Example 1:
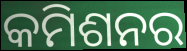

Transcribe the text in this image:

କମିଶନର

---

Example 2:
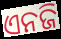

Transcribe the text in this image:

ଏନଜି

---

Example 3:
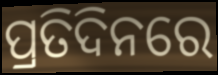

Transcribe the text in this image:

ପ୍ରତିଦିନରେ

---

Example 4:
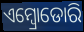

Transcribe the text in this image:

ଏମ୍ବ୍ରୋଡୋରି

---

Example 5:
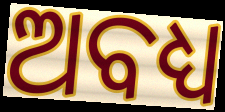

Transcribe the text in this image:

ଅବଧ୍ୟ